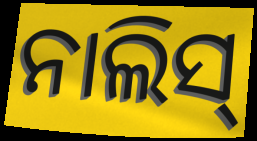
ନାଲିସ୍